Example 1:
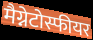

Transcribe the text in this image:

मैग्नेटोस्फीयर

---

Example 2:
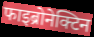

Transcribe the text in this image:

फाइब्रोनेक्टिन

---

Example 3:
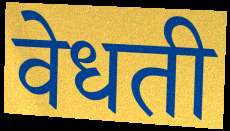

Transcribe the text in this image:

वेधती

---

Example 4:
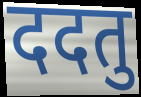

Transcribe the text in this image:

ददतु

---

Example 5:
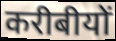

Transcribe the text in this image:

करीबीयों